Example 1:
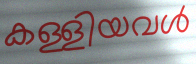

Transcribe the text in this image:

കള്ളിയവൾ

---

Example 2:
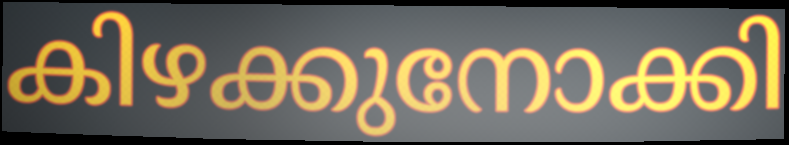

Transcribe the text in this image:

കിഴക്കുനോക്കി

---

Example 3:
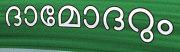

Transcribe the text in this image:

ദാമോദറും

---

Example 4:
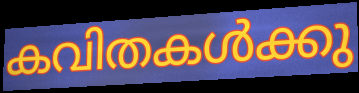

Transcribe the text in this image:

കവിതകൾക്കു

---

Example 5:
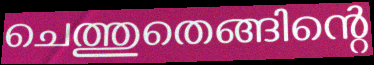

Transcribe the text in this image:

ചെത്തുതെങ്ങിന്റെ